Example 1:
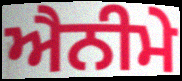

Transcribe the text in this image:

ਐਨੀਮੇ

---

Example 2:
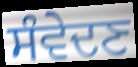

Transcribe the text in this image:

ਸੰਵੇਦਣ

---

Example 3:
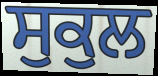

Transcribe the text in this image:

ਸੁਕੁਲ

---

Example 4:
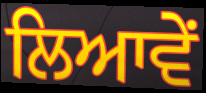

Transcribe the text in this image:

ਲਿਆਵੇਂ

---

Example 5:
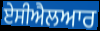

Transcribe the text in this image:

ਏਸੀਐਲਆਰ